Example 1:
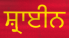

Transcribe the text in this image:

ਸ਼੍ਰਾਈਨ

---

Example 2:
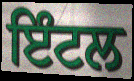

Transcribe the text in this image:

ਇੰਟਲ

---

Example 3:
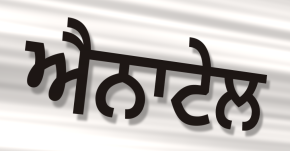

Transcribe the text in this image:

ਐਨਾਟੇਲ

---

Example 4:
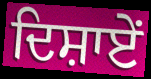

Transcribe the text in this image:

ਦਿਸ਼ਾਏਂ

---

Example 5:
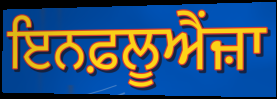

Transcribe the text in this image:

ਇਨਫ਼ਲੂਐਂਜ਼ਾ